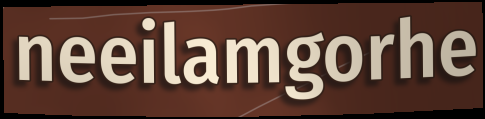
neeilamgorhe